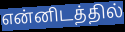
என்னிடத்தில்